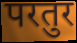
परतुर